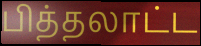
பித்தலாட்ட